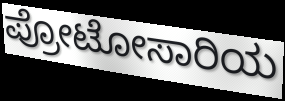
ಪ್ರೋಟೋಸಾರಿಯ